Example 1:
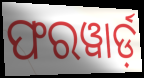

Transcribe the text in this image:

ଫରୱାର୍ଡ଼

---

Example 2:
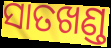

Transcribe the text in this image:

ସାତଖଣ୍ଡ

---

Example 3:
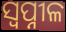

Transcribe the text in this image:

ସ୍ୱପ୍ନୀଳ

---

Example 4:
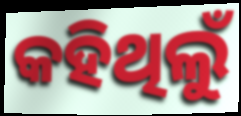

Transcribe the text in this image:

କହିଥିଲୁଁ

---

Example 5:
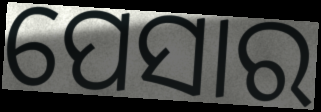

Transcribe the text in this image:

ପେସାର